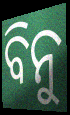
ବିନୁ